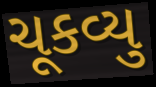
ચૂકવ્યુ